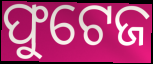
ଫୁଟେଜ